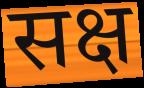
सक्ष